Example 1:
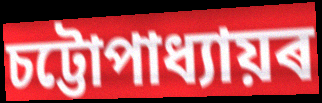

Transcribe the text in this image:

চট্টোপাধ্যায়ৰ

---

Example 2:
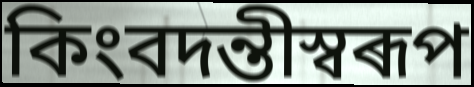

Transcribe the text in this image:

কিংবদন্তীস্বৰূপ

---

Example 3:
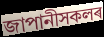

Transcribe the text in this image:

জাপানীসকলৰ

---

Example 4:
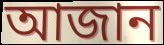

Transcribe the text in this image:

আজান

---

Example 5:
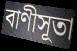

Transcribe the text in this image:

বাণীসূতা